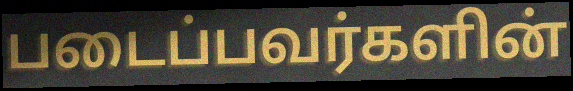
படைப்பவர்களின்